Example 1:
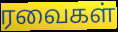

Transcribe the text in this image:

ரவைகள்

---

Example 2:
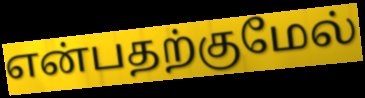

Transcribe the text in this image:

என்பதற்குமேல்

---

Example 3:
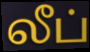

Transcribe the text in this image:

லீப்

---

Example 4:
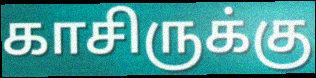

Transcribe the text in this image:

காசிருக்கு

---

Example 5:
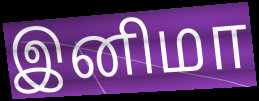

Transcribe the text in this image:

இனிமா